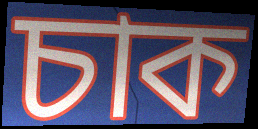
চাক